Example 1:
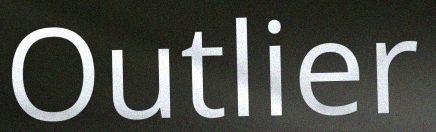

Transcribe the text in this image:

Outlier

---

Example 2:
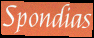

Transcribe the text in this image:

Spondias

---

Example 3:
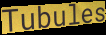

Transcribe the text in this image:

Tubules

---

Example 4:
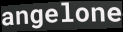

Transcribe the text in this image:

angelone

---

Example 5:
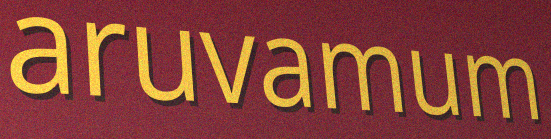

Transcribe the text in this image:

aruvamum